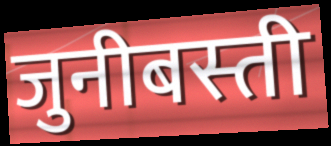
जुनीबस्ती